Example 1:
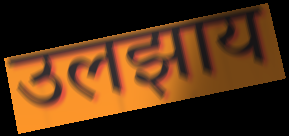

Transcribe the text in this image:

उलझाय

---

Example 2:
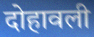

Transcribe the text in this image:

दोहावली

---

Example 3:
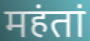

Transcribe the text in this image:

महंतां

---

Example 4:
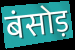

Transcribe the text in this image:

बंसोड़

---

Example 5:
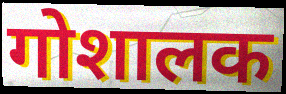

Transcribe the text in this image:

गोशालक